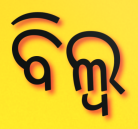
ବିଲ୍ଵ